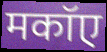
मकॉए